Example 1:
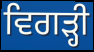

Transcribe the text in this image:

ਵਿਗੜ੍ਹੀ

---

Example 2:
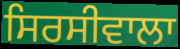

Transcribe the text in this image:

ਸਿਰਸੀਵਾਲਾ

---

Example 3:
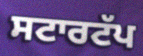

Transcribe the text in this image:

ਸਟਾਰਟੱਪ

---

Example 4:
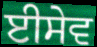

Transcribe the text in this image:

ਈਸੇਵ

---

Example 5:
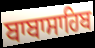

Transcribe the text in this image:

ਬਾਬਾਸਾਹਿਬ